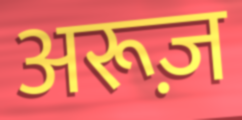
अरूज़